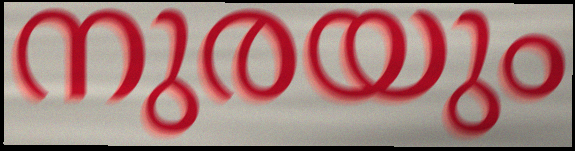
നുരയും